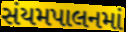
સંયમપાલનમાં